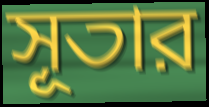
সূতার